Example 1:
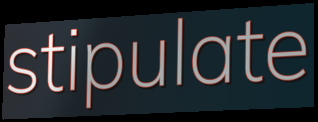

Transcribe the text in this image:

stipulate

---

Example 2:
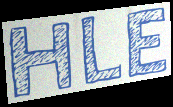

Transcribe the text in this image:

HLE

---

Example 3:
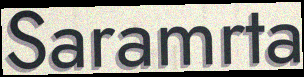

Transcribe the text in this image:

Saramrta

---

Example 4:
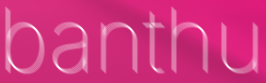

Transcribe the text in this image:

banthu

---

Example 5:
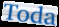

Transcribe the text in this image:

Toda